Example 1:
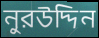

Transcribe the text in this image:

নুরউদ্দিন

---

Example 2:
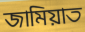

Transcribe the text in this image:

জামিয়াত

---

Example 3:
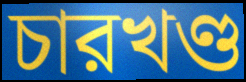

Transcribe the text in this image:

চারখণ্ড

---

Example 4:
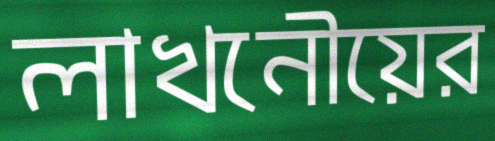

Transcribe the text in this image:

লাখনৌয়ের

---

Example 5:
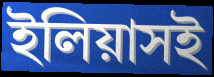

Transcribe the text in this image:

ইলিয়াসই